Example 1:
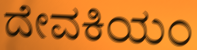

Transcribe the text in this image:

ದೇವಕಿಯಂ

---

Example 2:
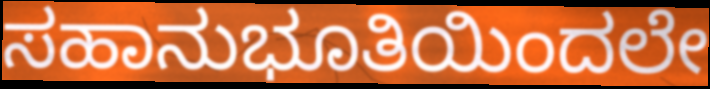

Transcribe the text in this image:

ಸಹಾನುಭೂತಿಯಿಂದಲೇ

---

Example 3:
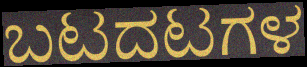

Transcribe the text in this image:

ಬಟದಟಗಳ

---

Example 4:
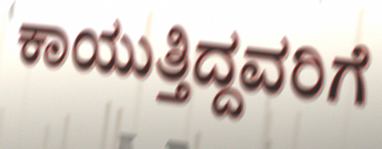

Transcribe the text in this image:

ಕಾಯುತ್ತಿದ್ದವರಿಗೆ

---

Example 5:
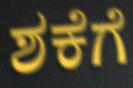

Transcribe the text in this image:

ಶಕೆಗೆ